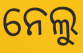
ନେଲୁ